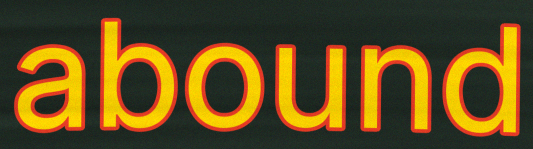
abound